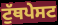
ਟੁੱਥਪੇਸਟ